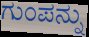
ಗುಂಪನ್ನು